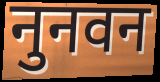
नुनवन